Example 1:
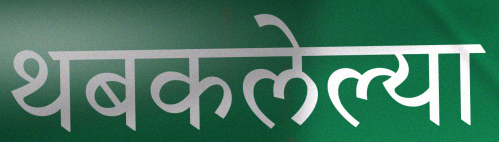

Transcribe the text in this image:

थबकलेल्या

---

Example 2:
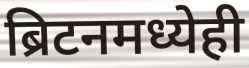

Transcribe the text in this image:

ब्रिटनमध्येही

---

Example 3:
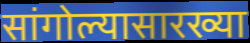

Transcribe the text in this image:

सांगोल्यासारख्या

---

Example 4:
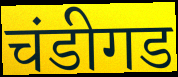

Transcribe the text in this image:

चंडीगड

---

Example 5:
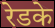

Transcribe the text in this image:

रेडके